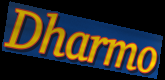
Dharmo